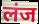
लंज